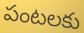
పంటలకు